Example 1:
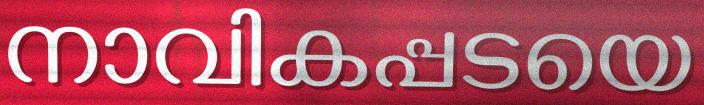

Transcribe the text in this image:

നാവികപ്പടയെ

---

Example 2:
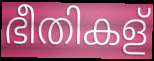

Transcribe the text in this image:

ഭീതികള്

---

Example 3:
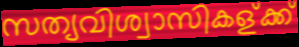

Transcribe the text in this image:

സത്യവിശ്വാസികള്ക്ക്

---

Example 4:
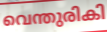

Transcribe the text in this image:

വെന്തുരികി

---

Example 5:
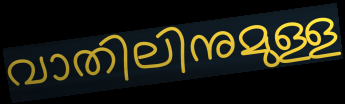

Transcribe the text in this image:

വാതിലിനുമുള്ള